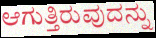
ಆಗುತ್ತಿರುವುದನ್ನು